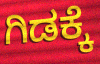
ಗಿಡಕ್ಕೆ